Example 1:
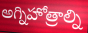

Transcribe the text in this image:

అగ్నిహోత్రాల్ని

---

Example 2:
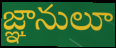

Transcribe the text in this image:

జ్ఞానులూ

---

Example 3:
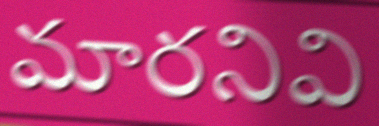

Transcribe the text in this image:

మారనివి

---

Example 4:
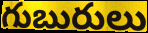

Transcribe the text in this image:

గుబురులు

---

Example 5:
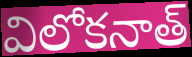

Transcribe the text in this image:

విలోకనాత్